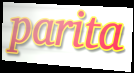
parita